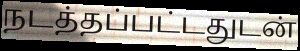
நடத்தப்பட்டதுடன்